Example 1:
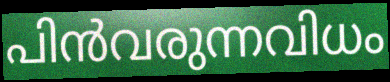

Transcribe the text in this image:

പിൻവരുന്നവിധം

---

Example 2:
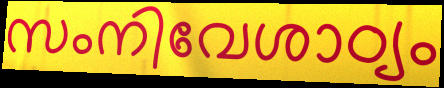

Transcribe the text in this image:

സംനിവേശാഠ്യം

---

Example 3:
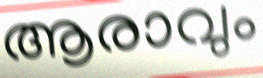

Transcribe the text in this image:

ആരാവും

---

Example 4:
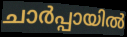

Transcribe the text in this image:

ചാർപ്പായിൽ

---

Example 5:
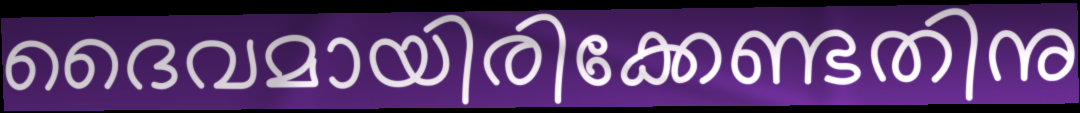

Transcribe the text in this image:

ദൈവമായിരിക്കേണ്ടതിനു